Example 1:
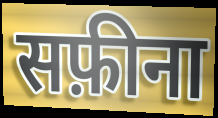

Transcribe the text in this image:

सफ़ीना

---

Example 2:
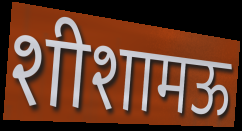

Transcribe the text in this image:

शीशामऊ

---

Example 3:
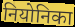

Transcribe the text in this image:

नियोनिका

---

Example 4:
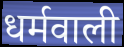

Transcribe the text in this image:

धर्मवाली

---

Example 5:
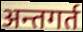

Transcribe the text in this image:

अन्तगर्त